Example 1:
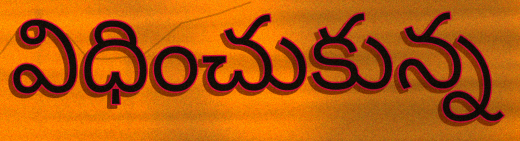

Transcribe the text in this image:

విధించుకున్న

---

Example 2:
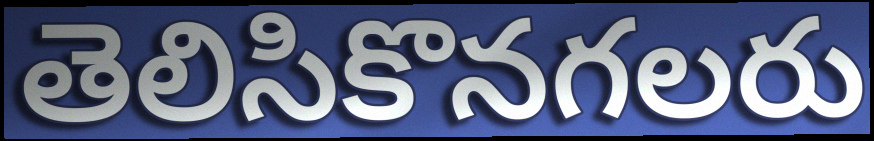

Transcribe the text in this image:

తెలిసికొనగలరు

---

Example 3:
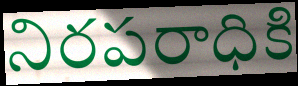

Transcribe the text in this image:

నిరపరాధికి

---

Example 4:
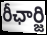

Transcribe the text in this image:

రీఛార్జి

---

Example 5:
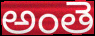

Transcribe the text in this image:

అంతె